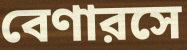
বেণারসে